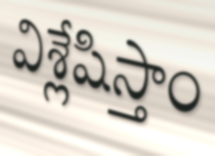
విశ్లేషిస్తాం